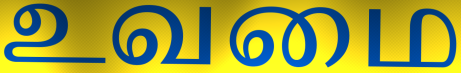
உவமை